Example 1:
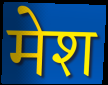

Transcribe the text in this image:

मेश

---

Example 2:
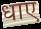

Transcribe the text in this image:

धाए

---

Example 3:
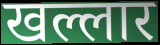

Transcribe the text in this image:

खल्लार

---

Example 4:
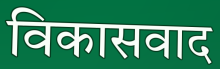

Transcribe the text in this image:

विकासवाद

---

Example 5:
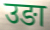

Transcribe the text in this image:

उङा